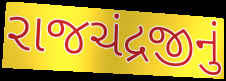
રાજચંદ્રજીનું